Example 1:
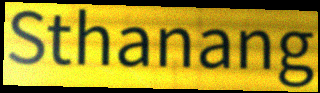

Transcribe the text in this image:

Sthanang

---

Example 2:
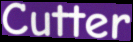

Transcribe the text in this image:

Cutter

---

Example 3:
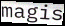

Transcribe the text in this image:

magis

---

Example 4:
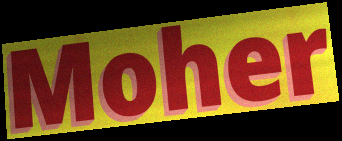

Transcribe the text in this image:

Moher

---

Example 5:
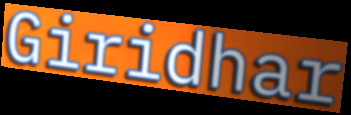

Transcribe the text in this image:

Giridhar